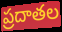
ప్రదాతల